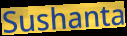
Sushanta